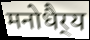
मनोधैर्य